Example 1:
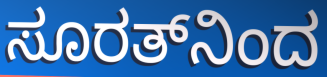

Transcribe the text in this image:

ಸೂರತ್‌ನಿಂದ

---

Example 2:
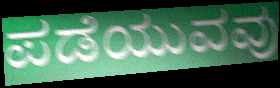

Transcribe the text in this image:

ಪಡೆಯುವವು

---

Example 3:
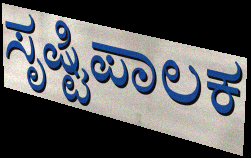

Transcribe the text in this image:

ಸೃಷ್ಟಿಪಾಲಕ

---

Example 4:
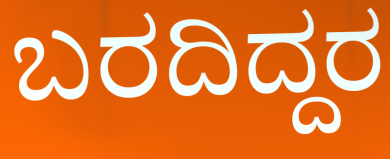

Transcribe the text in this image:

ಬರದಿದ್ದರ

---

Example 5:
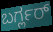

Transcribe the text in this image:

ಬರ್ಗ್ಲರ್